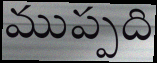
ముప్పది